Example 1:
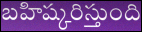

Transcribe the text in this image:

బహిష్కరిస్తుంది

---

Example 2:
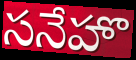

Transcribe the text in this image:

సనేహొ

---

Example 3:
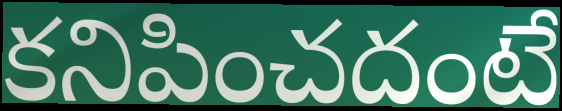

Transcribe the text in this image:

కనిపించదంటే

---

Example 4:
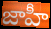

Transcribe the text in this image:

జాహీ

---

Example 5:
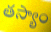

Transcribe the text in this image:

తస్యాం